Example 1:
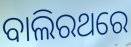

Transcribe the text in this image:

ବାଲିରଥରେ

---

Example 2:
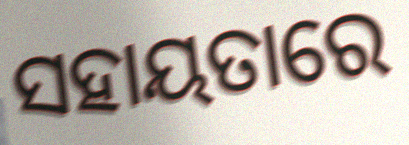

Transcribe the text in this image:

ସହାୟତାରେ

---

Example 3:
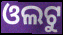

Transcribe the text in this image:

ଓଲଟୁ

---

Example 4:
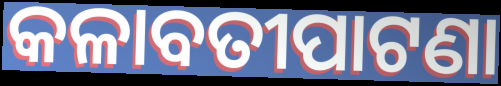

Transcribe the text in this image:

କଳାବତୀପାଟଣା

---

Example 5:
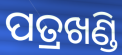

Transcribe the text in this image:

ପତ୍ରଖଣ୍ଡି